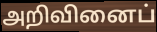
அறிவினைப்